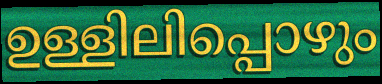
ഉള്ളിലിപ്പൊഴും